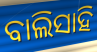
ବାଲିସାହି